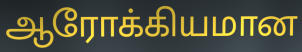
ஆரோக்கியமான